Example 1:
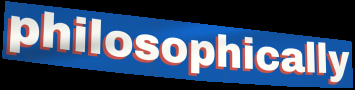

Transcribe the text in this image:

philosophically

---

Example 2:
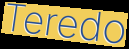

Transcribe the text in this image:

Teredo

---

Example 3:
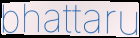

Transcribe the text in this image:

bhattaru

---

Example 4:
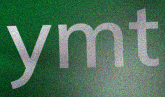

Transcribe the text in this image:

ymt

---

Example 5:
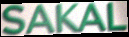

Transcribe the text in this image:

SAKAL